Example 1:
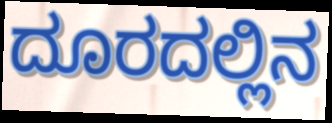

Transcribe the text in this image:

ದೂರದಲ್ಲಿನ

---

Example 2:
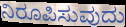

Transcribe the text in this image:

ನಿರೂಪಿಸುವುದು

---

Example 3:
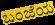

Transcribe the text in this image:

ಬಂಜೆಯ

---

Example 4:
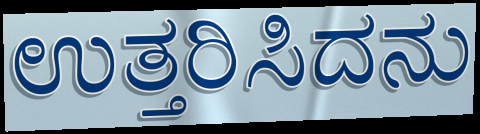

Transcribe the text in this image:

ಉತ್ತರಿಸಿದನು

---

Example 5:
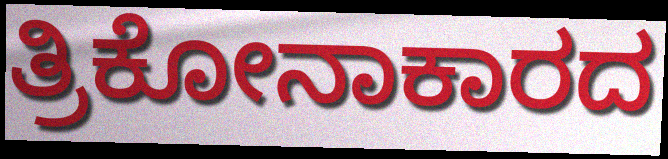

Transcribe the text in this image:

ತ್ರಿಕೋನಾಕಾರದ